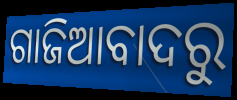
ଗାଜିଆବାଦରୁ